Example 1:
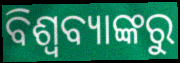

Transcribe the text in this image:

ବିଶ୍ୱବ୍ୟାଙ୍କରୁ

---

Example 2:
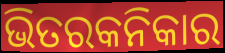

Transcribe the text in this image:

ଭିତରକନିକାର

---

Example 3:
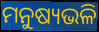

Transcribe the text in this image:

ମନୁଷ୍ୟଭଳି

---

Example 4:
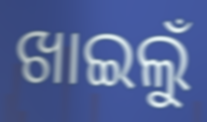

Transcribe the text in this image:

ଖାଇଲୁଁ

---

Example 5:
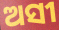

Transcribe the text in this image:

ଅସୀ